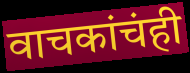
वाचकांचंही